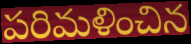
పరిమళించిన